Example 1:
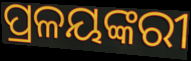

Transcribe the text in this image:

ପ୍ରଳୟଙ୍କରୀ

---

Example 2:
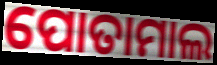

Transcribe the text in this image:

ପୋତାମାଲ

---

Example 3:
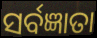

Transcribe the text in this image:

ସର୍ବଜ୍ଞାତା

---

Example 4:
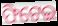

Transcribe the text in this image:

ଫିଟେଇ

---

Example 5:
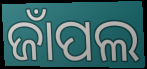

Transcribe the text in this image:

ଜାଁପଲ